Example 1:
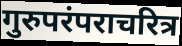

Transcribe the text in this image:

गुरुपरंपराचरित्र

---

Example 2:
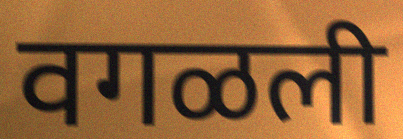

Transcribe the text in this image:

वगळली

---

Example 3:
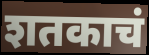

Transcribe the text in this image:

शतकाचं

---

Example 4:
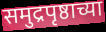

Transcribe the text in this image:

समुद्रपृष्ठाच्या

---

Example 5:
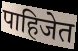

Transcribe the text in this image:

पाहिजेत